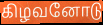
கிழவனோடு